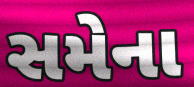
સમેના